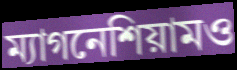
ম্যাগনেশিয়ামও